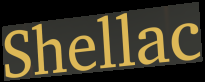
Shellac